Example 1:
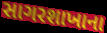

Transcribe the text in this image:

સાગરશાખાના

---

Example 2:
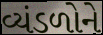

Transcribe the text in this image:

વ્યંડળોને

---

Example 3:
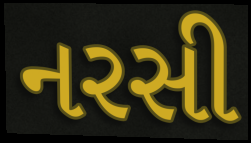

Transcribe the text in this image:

નરસી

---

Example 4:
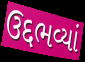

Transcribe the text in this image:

ઉદ્દભવ્યાં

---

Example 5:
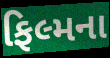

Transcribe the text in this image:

ફિલ્મના